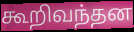
கூறிவந்தன